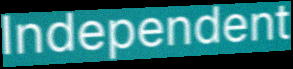
Independent